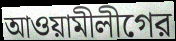
আওয়ামীলীগের